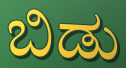
ಬಿಡು